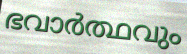
ഭവാർത്ഥവും